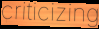
criticizing